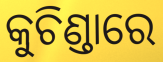
କୁଚିଣ୍ଡାରେ